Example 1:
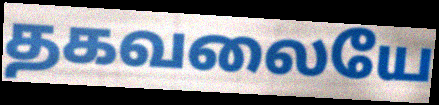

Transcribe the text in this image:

தகவலையே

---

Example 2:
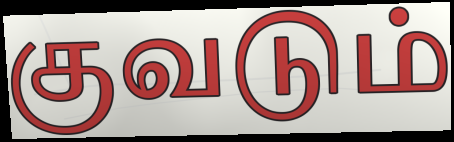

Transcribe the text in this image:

குவடும்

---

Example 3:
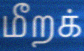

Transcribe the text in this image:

மீறக்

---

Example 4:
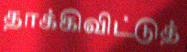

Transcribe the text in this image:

தாக்கிவிட்டுத்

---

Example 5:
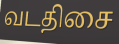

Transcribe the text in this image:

வடதிசை